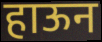
हाऊन